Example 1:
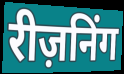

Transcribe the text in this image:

रीज़निंग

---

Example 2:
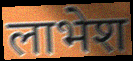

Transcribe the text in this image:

लाभेश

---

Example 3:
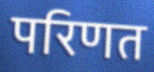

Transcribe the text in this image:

परिणत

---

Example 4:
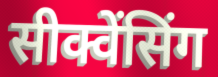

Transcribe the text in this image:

सीक्वेंसिंग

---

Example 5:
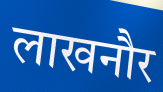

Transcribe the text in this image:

लाखनौर